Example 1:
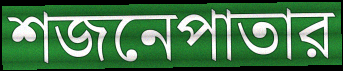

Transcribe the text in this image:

শজনেপাতার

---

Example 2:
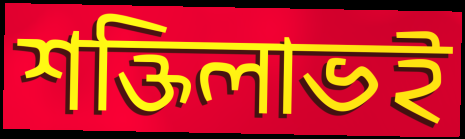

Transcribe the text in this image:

শক্তিলাভই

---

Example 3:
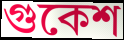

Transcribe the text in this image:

গুকেশ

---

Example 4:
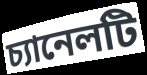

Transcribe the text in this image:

চ্যানেলটি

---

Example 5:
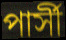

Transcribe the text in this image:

পার্সী